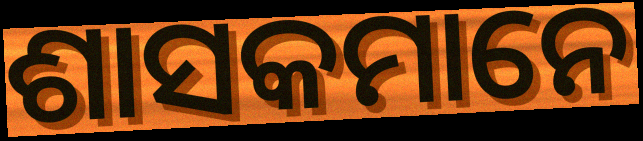
ଶାସକମାନେ